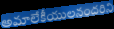
అమాలేకీయులనందరిని